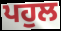
ਪਹੁਲ